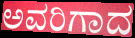
ಅವರಿಗಾದ